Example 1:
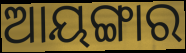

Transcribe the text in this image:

ଆୟଙ୍ଗାର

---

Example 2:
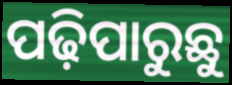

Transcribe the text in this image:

ପଢ଼ିପାରୁଛୁ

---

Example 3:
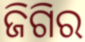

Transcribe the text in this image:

ଜିଗିର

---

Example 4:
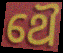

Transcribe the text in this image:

ଥୈ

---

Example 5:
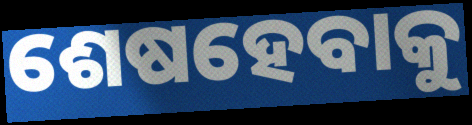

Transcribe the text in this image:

ଶେଷହେବାକୁ